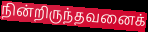
நின்றிருந்தவனைக்